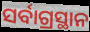
ସର୍ବାଗ୍ରସ୍ଥାନ